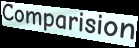
Comparision